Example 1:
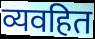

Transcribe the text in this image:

व्यवहित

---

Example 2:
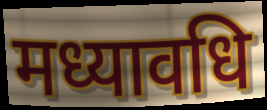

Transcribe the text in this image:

मध्यावधि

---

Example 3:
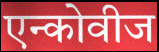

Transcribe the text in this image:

एन्कोवीज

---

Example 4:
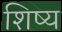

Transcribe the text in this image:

शिष्य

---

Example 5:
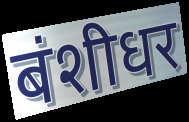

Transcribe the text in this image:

बंशीधर